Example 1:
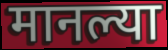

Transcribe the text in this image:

मानल्या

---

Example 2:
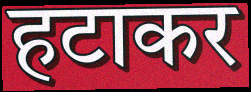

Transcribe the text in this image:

हटाकर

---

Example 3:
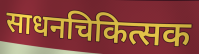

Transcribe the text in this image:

साधनचिकित्सक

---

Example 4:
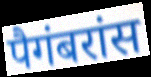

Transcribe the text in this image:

पैगंबरांस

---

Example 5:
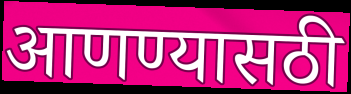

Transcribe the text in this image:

आणण्यासठी